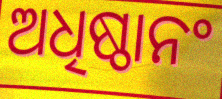
ଅଧିଷ୍ଠାନଂ